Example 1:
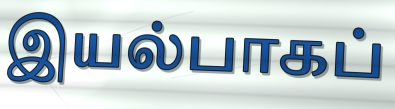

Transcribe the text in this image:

இயல்பாகப்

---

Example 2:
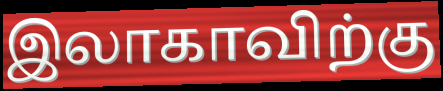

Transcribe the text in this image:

இலாகாவிற்கு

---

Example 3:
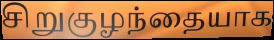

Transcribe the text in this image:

சிறுகுழந்தையாக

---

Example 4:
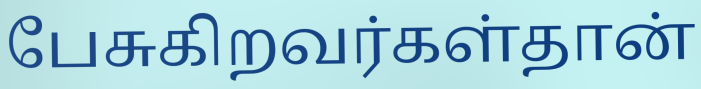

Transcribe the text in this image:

பேசுகிறவர்கள்தான்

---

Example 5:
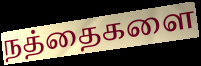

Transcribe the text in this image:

நத்தைகளை